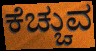
ಕೆಚ್ಚುವ